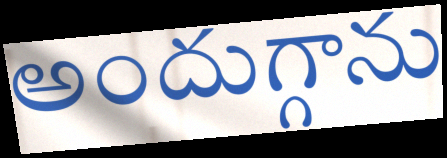
అందుగ్గాను